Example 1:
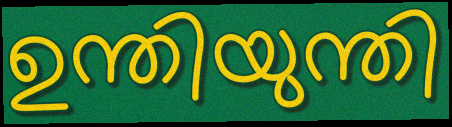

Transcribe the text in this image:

ഉന്തിയുന്തി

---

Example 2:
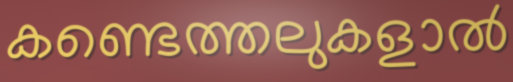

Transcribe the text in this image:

കണ്ടെത്തലുകളാൽ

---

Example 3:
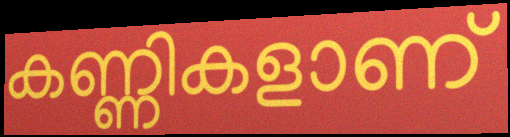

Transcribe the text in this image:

കണ്ണികളാണ്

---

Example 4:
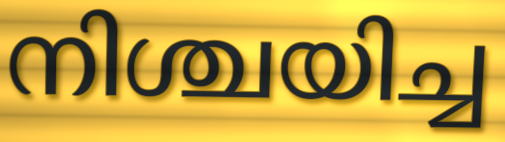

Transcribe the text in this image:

നിശ്ചയിച്ച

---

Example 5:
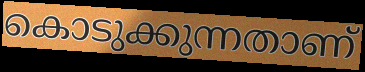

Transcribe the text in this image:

കൊടുക്കുന്നതാണ്